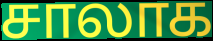
சாலாக